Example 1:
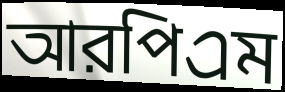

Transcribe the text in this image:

আরপিএম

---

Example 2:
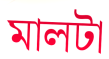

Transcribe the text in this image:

মালটা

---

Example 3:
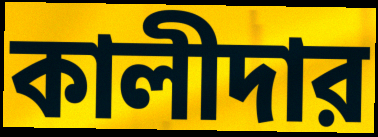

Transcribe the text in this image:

কালীদার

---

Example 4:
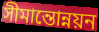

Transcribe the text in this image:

সীমান্তোন্নয়ন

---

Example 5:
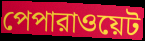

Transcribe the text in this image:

পেপারাওয়েট